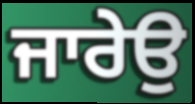
ਜਾਰੇਉ